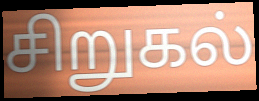
சிறுகல்